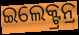
ଇଲେକ୍ଟ୍ରନ୍ର